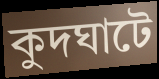
কুদঘাটে